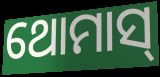
ଥୋମାସ୍